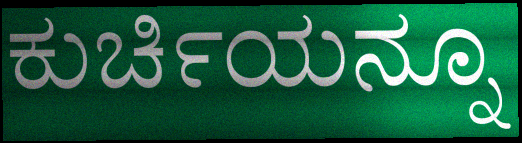
ಕುರ್ಚಿಯನ್ನೂ